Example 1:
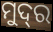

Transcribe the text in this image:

ମୁଦ୍‌ର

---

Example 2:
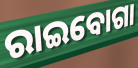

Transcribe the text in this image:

ରାଇବୋଗା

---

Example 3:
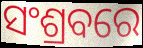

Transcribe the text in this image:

ସଂଶ୍ରବରେ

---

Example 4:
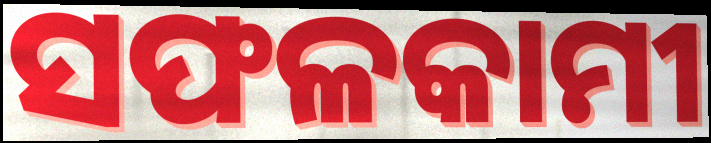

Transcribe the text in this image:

ସଫଳକାମୀ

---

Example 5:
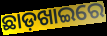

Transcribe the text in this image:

ଛାଡ଼ଖାଇରେ